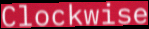
Clockwise